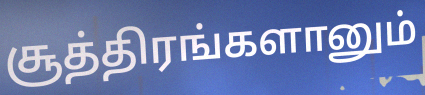
சூத்திரங்களானும்